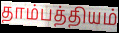
தாம்பத்தியம்